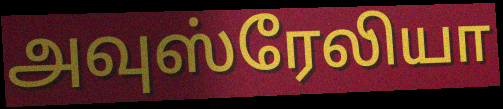
அவுஸ்ரேலியா